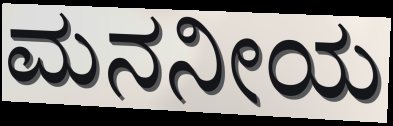
ಮನನೀಯ